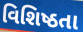
વિશિષ્ઠતા